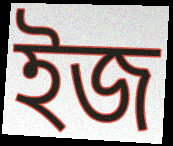
ইজ